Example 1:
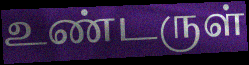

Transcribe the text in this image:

உண்டருள்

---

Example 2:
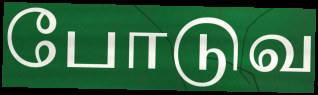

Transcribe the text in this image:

போடுவ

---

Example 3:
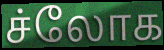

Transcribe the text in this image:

ச்லோக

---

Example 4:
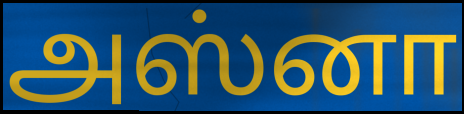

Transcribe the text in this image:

அஸ்னா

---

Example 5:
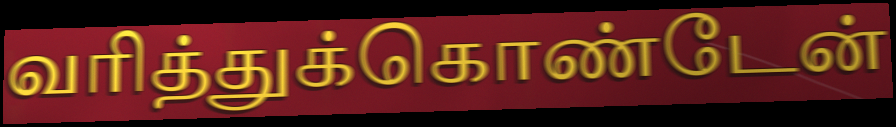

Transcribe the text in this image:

வரித்துக்கொண்டேன்